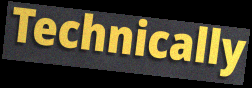
Technically